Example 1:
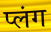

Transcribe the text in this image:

प्लंग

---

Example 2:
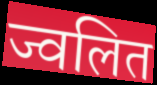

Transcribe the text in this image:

ज्वलित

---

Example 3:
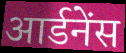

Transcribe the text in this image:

आर्डनेंस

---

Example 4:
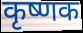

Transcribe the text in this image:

कृष्णक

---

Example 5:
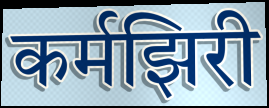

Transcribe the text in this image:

कर्मझिरी